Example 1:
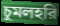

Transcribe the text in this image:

চুমলহরি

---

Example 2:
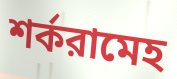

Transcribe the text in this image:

শর্করামেহ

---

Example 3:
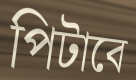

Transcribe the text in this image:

পিটাবে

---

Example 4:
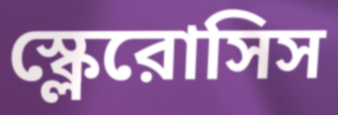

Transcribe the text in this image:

স্ক্লেরোসিস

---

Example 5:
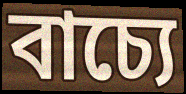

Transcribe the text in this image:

বাচ্যে